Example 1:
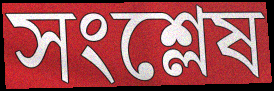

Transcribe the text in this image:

সংশ্লেষ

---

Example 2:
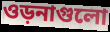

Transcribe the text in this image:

ওড়নাগুলো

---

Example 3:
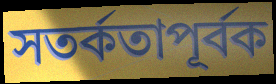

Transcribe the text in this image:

সতর্কতাপূর্বক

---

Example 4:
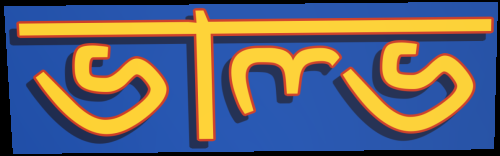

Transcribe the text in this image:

ভাল্ভ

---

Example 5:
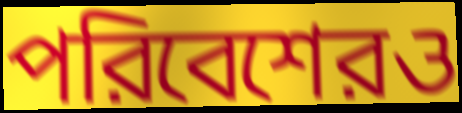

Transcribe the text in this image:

পরিবেশেরও